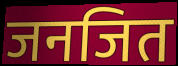
जनजित